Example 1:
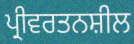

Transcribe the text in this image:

ਪ੍ਰੀਵਰਤਨਸ਼ੀਲ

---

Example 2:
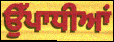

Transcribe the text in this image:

ਉੱਪਾਧੀਆਂ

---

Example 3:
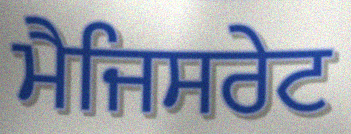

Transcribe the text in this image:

ਮੈਜਿਸਰੇਟ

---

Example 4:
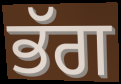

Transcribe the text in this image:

ਭੱਗ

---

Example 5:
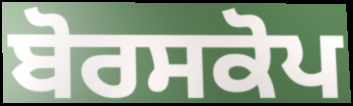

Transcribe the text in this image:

ਬੋਰਸਕੋਪ